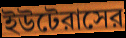
ইউটেরাসের